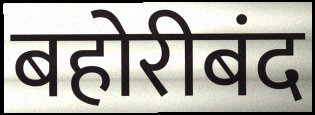
बहोरीबंद